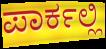
ಪಾರ್ಕಲ್ಲಿ